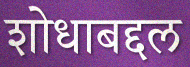
शोधाबद्दल